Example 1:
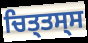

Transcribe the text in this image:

ਚਿਤ੍ਤਸ੍ਸ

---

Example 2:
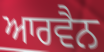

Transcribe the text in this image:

ਆਰਵੈਨ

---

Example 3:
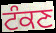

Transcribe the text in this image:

ਟੰਕਣ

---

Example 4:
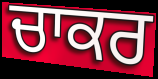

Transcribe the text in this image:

ਚਾਕਰ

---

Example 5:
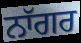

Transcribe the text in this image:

ਨਾੱਗਰ